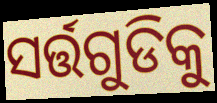
ସର୍ତ୍ତଗୁଡିକୁ